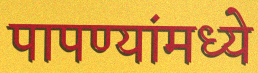
पापण्यांमध्ये